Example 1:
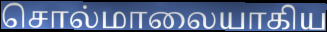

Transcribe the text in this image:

சொல்மாலையாகிய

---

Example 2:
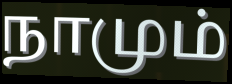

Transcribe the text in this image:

நாமும்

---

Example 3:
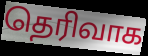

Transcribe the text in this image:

தெரிவாக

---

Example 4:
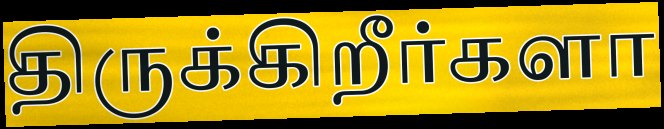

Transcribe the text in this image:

திருக்கிறீர்களா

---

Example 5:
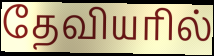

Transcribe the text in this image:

தேவியரில்